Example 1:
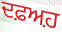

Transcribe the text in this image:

ਦਫ਼ਅ਼ਹ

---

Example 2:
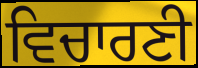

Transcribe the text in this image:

ਵਿਚਾਰਣੀ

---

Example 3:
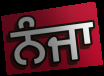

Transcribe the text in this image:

ਨੰਜਾ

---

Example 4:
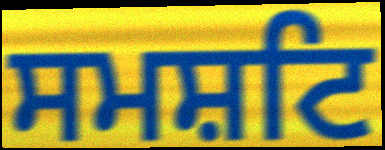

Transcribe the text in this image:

ਸਮਸ਼ਟਿ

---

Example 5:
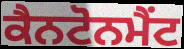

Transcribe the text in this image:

ਕੈਨਟੋਨਮੈਂਟ